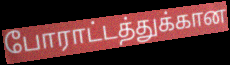
போராட்டத்துக்கான